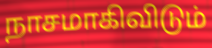
நாசமாகிவிடும்